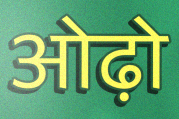
ओढ़ो